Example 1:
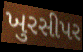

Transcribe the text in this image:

ખુરસીપર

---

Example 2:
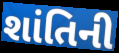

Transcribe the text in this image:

શાંતિની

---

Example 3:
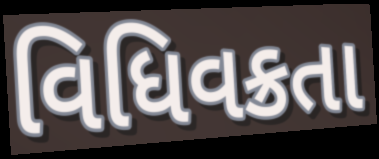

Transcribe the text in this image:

વિધિવક્રતા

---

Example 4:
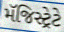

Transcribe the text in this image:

મૅજિસ્ટ્રેટે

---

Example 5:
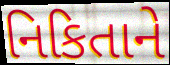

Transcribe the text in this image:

નિકિતાને